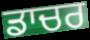
ਡਾਚਰ